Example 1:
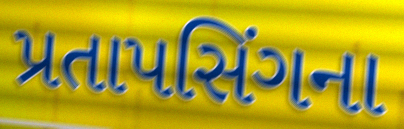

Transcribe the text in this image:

પ્રતાપસિંગના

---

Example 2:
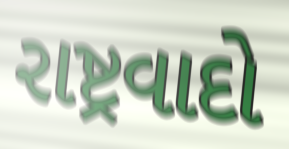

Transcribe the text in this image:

રાષ્ટ્રવાદો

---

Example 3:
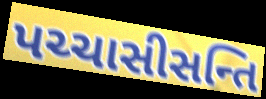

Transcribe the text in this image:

પચ્ચાસીસન્તિ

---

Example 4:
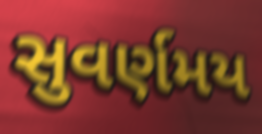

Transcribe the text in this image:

સુવર્ણમય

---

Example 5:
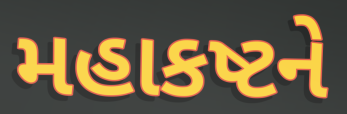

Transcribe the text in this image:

મહાકષ્ટને